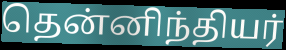
தென்னிந்தியர்